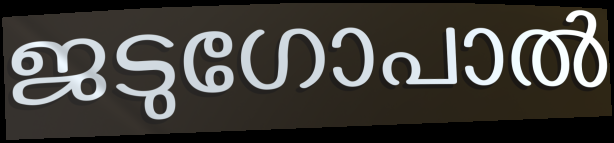
ജടുഗോപാൽ